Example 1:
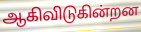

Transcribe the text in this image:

ஆகிவிடுகின்றன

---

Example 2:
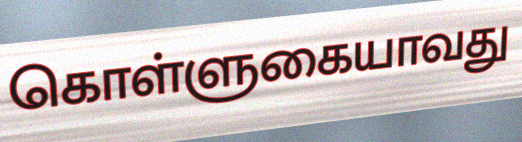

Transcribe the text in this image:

கொள்ளுகையாவது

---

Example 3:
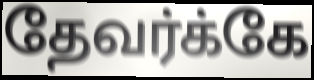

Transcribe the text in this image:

தேவர்க்கே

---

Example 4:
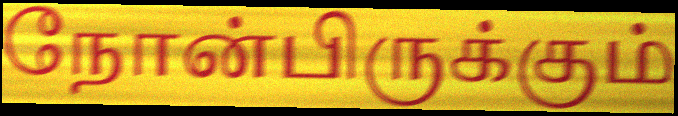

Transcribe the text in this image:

நோன்பிருக்கும்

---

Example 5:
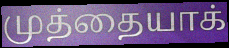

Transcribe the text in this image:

முத்தையாக்